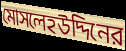
মোসলেহউদ্দিনের